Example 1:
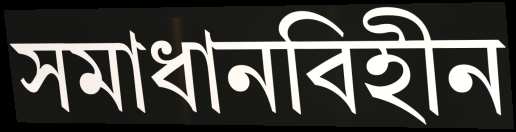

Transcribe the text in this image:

সমাধানবিহীন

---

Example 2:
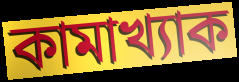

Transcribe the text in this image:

কামাখ্যাক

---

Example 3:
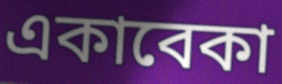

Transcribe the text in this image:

একাবেকা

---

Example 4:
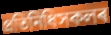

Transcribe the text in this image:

প্ৰতিনিধিসকলৰ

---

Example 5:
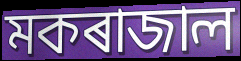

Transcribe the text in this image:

মকৰাজাল